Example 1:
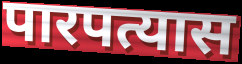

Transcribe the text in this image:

पारपत्यास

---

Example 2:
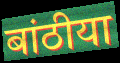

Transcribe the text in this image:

बांठीया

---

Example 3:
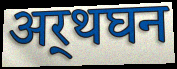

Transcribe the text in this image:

अर्थघन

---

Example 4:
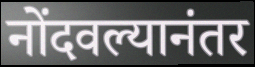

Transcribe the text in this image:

नोंदवल्यानंतर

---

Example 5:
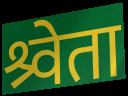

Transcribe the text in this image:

श्र्वेता